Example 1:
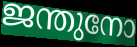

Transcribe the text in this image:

ജന്തുനോ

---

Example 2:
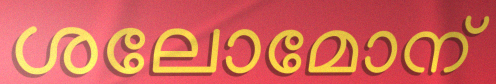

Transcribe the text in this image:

ശലോമോന്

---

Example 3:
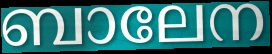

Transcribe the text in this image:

ബാലേന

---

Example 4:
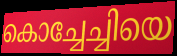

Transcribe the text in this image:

കൊച്ചേച്ചിയെ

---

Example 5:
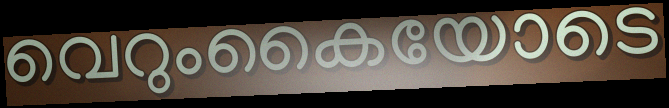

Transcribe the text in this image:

വെറുംകൈയോടെ